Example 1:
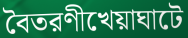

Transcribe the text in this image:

বৈতরণীখেয়াঘাটে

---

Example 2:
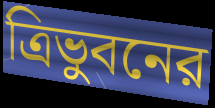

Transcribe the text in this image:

ত্রিভুবনের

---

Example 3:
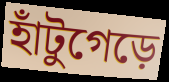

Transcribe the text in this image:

হাঁটুগেড়ে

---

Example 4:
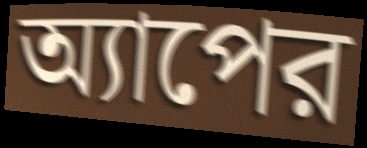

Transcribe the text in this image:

অ্যাপের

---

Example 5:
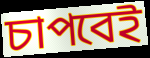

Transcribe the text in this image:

চাপবেই